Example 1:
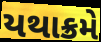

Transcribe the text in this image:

યથાક્રમે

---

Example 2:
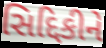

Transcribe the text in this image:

સિદ્દિકીને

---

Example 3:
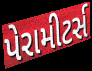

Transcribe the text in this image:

પેરામીટર્સ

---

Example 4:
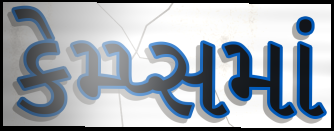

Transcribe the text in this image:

કેમ્પ્સમાં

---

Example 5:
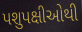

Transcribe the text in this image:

પશુપક્ષીઓથી